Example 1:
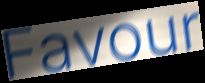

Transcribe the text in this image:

Favour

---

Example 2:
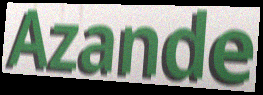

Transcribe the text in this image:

Azande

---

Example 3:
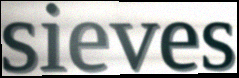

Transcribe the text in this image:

sieves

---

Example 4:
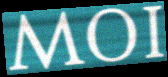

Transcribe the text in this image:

MOI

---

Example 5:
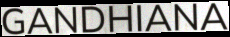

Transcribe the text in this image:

GANDHIANA